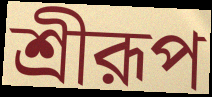
শ্রীরূপ